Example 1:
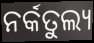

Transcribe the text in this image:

ନର୍କତୁଲ୍ୟ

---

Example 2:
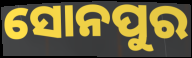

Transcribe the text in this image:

ସୋନପୁର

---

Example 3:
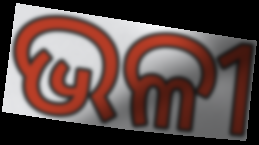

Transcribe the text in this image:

ଭଳୀ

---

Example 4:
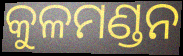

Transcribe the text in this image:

କୁଳମଣ୍ଡନ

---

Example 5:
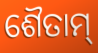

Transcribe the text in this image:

ଶୈତାମ୍